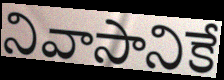
నివాసానికే